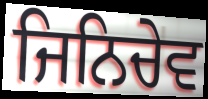
ਜਿਨਿਚੇਵ